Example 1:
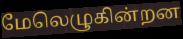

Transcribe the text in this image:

மேலெழுகின்றன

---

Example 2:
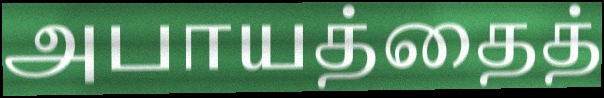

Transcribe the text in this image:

அபாயத்தைத்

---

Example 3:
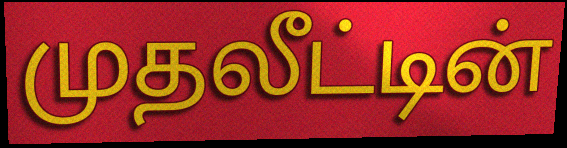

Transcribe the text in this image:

முதலீட்டின்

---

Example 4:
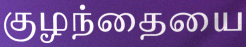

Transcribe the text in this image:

குழந்தையை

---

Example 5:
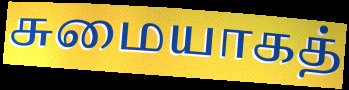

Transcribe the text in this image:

சுமையாகத்